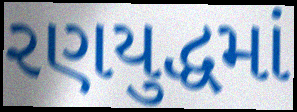
રણયુદ્ધમાં